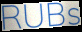
RUBs